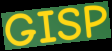
GISP